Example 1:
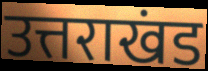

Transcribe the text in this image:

उत्तराखंड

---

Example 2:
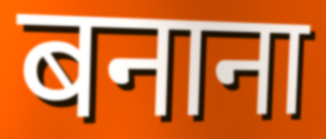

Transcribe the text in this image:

बनाना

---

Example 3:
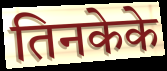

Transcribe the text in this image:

तिनकेके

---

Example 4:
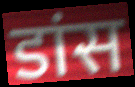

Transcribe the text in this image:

डांस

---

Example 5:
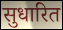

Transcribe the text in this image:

सुधारित